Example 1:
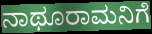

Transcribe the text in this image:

ನಾಥೂರಾಮನಿಗೆ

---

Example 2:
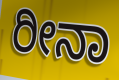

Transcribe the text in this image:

ರೀನಾ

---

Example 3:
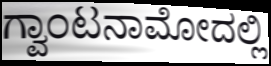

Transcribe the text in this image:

ಗ್ವಾಂಟನಾಮೋದಲ್ಲಿ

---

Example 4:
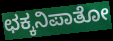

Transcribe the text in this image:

ಛಕ್ಕನಿಪಾತೋ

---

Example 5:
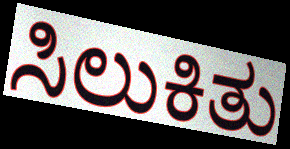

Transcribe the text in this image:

ಸಿಲುಕಿತು